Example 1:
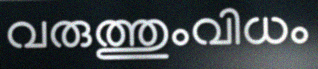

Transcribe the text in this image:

വരുത്തുംവിധം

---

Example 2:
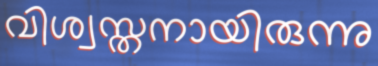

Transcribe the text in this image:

വിശ്വസ്തനായിരുന്നു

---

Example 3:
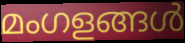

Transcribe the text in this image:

മംഗളങ്ങൾ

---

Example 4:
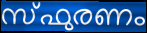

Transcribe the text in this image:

സ്ഫുരണം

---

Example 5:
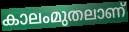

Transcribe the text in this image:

കാലംമുതലാണ്